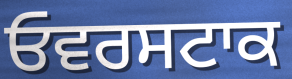
ਓਵਰਸਟਾਕ